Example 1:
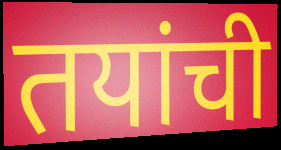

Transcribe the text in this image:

तयांची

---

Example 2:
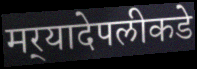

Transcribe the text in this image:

मर्यादेपलीकडे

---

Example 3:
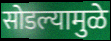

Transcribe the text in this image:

सोडल्यामुळे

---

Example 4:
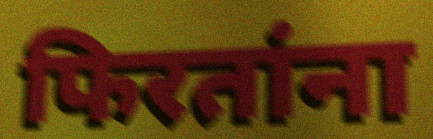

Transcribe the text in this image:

फिरतांना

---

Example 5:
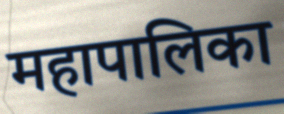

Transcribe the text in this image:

महापालिका